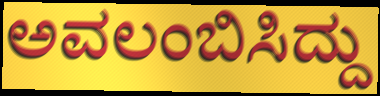
ಅವಲಂಬಿಸಿದ್ದು